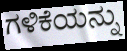
ಗಳಿಕೆಯನ್ನು